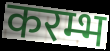
करम्भ